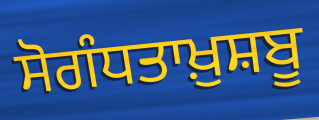
ਸੋਗੰਧਤਾਖ਼ੁਸ਼ਬੂ